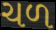
ચળ